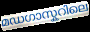
മഡഗാസ്കറിലെ